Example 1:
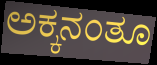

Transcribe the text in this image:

ಅಕ್ಕನಂತೂ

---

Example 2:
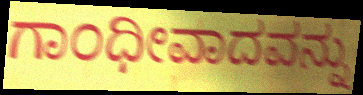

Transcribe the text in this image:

ಗಾಂಧೀವಾದವನ್ನು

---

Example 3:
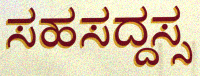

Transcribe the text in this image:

ಸಹಸದ್ದಸ್ಸ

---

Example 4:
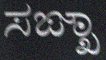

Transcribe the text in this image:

ಸಙ್ಖಾ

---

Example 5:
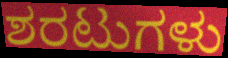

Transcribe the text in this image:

ಶರಟುಗಳು